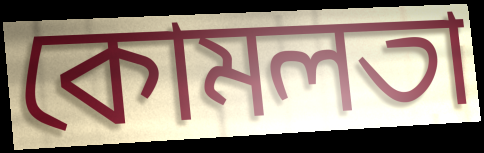
কোমলতা